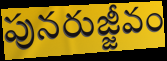
పునరుజ్జీవం